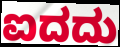
ಐದದು